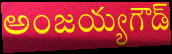
అంజయ్యగౌడ్